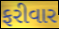
ફરીવાર